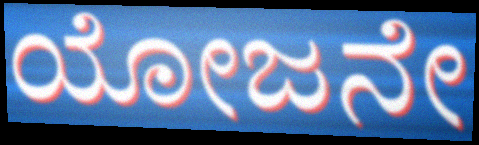
ಯೋಜನೇ